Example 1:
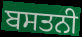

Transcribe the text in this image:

ਬਸਤਨੀ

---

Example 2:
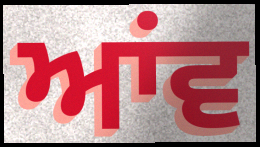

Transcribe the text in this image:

ਆਂਵ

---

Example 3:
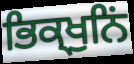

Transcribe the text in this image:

ਭਿਕ੍ਖੁਨਿਂ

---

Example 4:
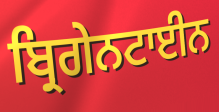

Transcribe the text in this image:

ਬ੍ਰਿਗੇਨਟਾਈਨ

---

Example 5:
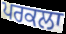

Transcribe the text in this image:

ਪਰਕਲਾ